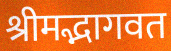
श्रीमद्भागवत